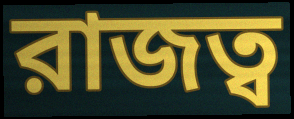
রাজত্ব